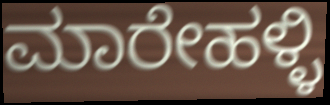
ಮಾರೇಹಳ್ಳಿ